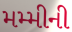
મમ્મીની